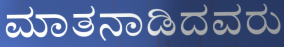
ಮಾತನಾಡಿದವರು